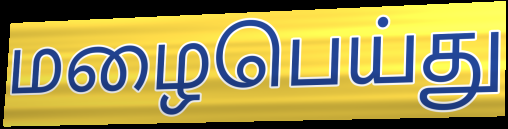
மழைபெய்து